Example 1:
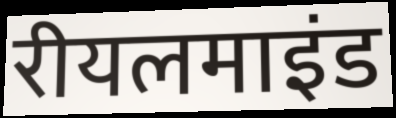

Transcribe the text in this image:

रीयलमाइंड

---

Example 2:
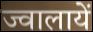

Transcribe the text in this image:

ज्वालायें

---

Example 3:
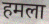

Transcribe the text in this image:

हमला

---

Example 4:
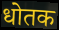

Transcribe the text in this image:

धोतक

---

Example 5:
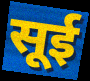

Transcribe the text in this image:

सूई